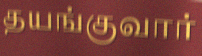
தயங்குவார்